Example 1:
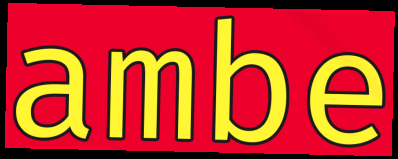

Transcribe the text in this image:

ambe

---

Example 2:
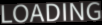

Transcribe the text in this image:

LOADING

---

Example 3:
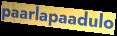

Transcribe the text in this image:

paarlapaadulo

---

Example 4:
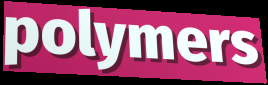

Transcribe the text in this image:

polymers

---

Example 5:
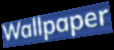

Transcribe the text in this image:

Wallpaper